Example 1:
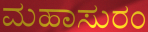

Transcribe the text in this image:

ಮಹಾಸುರಂ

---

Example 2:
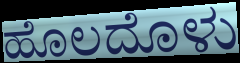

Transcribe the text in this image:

ಹೊಲದೊಳು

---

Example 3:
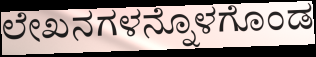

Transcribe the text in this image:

ಲೇಖನಗಳನ್ನೊಳಗೊಂಡ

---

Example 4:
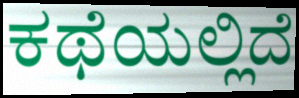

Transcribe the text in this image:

ಕಥೆಯಲ್ಲಿದೆ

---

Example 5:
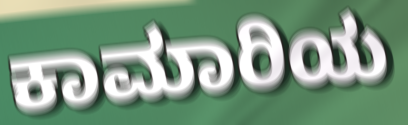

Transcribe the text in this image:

ಕಾಮಾರಿಯ